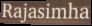
Rajasimha